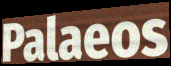
Palaeos